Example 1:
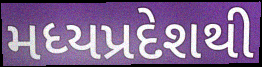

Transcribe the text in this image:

મધ્યપ્રદેશથી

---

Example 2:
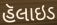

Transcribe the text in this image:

હૅલાઇડ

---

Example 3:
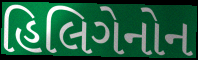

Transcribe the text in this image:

હિલિગેનોન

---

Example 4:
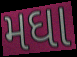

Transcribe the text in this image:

મઘા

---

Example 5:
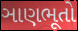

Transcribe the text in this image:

ઞાણભૂતો